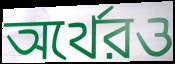
অর্থেরও